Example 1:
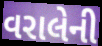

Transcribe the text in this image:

વરાલેની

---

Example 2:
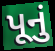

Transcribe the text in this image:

પૂનું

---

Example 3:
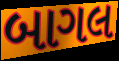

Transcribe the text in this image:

બાગલ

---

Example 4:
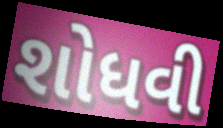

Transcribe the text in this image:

શોધવી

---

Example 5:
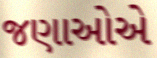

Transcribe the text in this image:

જણાઓએ